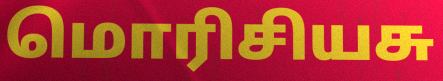
மொரிசியசு